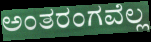
ಅಂತರಂಗವೆಲ್ಲ